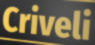
Criveli